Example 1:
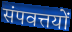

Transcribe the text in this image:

संपवत्तयों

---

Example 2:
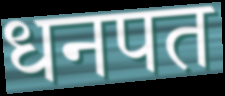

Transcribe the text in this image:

धनपत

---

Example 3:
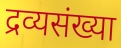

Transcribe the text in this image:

द्रव्यसंख्या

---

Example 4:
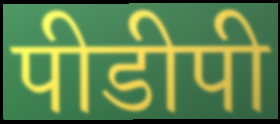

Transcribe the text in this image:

पीडीपी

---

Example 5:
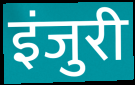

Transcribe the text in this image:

इंजुरी